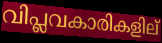
വിപ്ലവകാരികളില്